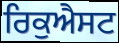
ਰਿਕੁਐਸਟ